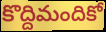
కొద్దిమందికో